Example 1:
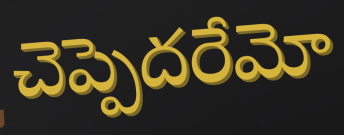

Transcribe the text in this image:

చెప్పెదరేమో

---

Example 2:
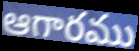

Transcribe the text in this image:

ఆగారము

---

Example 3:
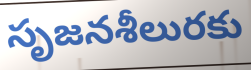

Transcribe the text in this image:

సృజనశీలురకు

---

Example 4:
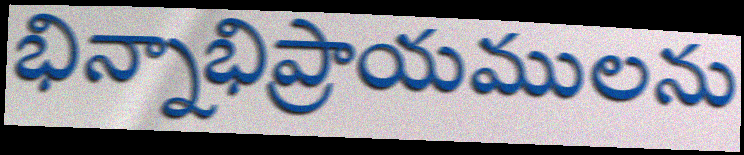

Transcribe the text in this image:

భిన్నాభిప్రాయములను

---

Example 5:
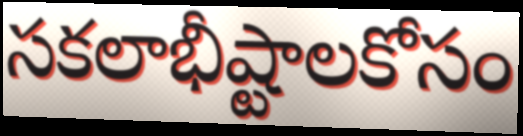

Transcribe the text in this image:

సకలాభీష్టాలకోసం